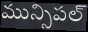
మున్సిపల్